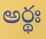
అర్థః